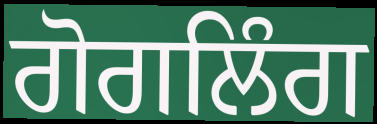
ਗੋਗਲਿੰਗ